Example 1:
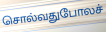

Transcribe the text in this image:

சொல்வதுபோலச்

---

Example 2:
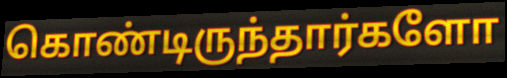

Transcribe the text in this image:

கொண்டிருந்தார்களோ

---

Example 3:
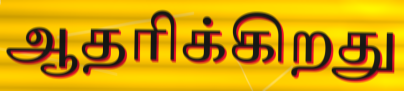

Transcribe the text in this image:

ஆதரிக்கிறது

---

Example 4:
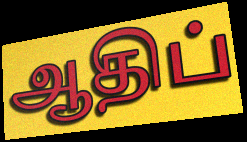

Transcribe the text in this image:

ஆதிப்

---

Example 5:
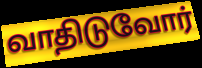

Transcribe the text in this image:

வாதிடுவோர்